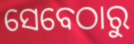
ସେବେଠାରୁ